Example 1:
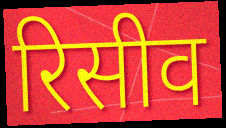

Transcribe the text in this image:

रिसीव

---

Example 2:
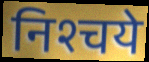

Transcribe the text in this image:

निश्चये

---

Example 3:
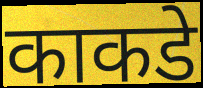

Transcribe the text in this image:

काकडे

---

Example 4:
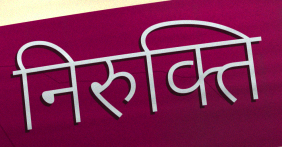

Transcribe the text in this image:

निरुक्ति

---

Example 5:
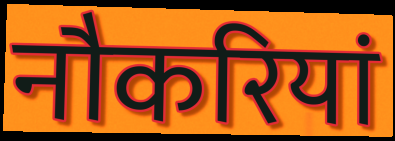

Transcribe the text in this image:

नौकरियां